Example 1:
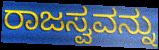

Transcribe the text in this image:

ರಾಜಸ್ವವನ್ನು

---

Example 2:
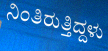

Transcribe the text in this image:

ನಿಂತಿರುತ್ತಿದ್ದಳು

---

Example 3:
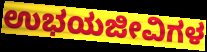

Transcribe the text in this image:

ಉಭಯಜೀವಿಗಳ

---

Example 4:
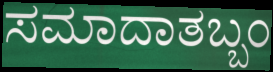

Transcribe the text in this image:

ಸಮಾದಾತಬ್ಬಂ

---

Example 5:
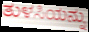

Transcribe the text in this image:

ತುಳಸಿಯನ್ನು